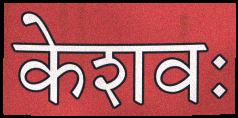
केशवः